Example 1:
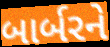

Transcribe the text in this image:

બાર્બરને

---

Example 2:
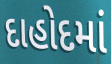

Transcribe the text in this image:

દાહોદમાં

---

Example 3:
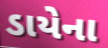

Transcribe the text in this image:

ડાયેના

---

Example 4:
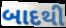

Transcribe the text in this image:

બાદથી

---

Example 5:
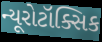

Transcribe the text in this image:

ન્યૂરોટૉક્સિક